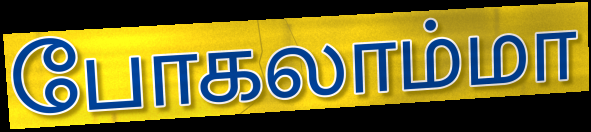
போகலாம்மா